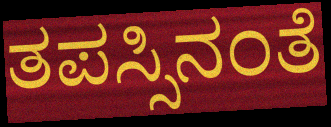
ತಪಸ್ಸಿನಂತೆ